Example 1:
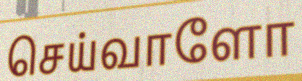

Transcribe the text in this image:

செய்வாளோ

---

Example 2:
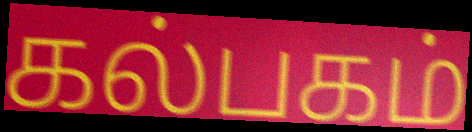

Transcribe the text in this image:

கல்பகம்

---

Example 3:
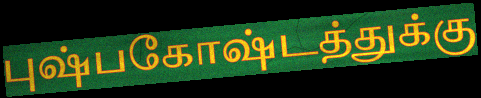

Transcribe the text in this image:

புஷ்பகோஷ்டத்துக்கு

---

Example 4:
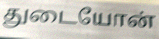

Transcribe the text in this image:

துடையோன்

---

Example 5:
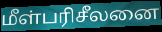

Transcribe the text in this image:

மீள்பரிசீலனை